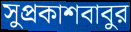
সুপ্রকাশবাবুর